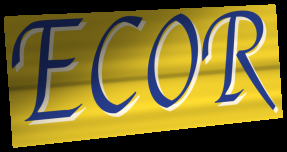
ECOR